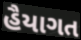
હૈયાગત